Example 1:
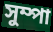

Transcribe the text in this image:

সুম্পা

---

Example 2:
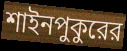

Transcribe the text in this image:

শাইনপুকুরের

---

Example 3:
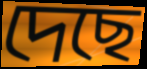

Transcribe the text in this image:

দেছে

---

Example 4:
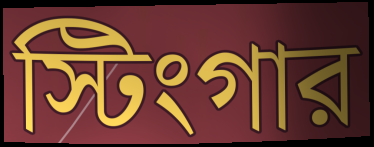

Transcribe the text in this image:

স্টিংগার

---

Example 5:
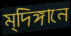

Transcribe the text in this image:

ম্‌দিঙ্গানে